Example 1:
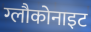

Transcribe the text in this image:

ग्लौकोनाइट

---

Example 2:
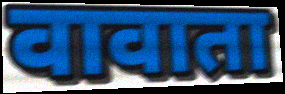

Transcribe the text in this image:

वावाता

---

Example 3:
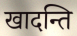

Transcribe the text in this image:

खादन्ति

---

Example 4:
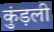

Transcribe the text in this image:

कुंड़ली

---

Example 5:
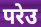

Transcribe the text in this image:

परेउ